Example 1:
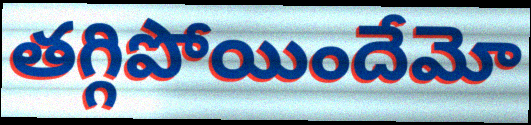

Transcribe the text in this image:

తగ్గిపోయిందేమో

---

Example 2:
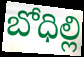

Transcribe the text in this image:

బోధిల్లి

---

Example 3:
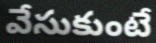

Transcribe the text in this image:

వేసుకుంటే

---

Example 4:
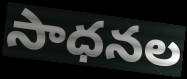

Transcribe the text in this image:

సాధనల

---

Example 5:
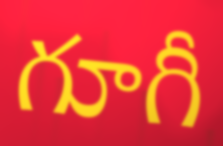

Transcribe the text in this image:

గూగీ